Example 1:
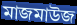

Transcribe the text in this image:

মাজমাউজ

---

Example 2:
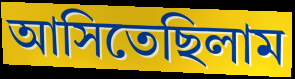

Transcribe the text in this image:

আসিতেছিলাম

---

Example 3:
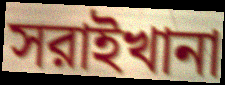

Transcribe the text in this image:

সরাইখানা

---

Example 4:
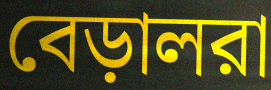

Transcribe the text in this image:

বেড়ালরা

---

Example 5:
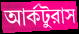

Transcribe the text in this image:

আর্কটুরাস